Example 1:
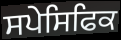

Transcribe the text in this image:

ਸਪੇਸਿਫਿਕ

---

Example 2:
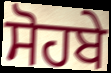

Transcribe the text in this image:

ਸੋਹਬੇ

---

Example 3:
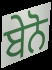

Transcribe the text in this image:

ਬੇਨੋ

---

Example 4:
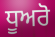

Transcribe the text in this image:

ਧੂਅਰੋ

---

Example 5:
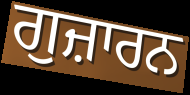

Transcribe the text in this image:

ਗੁਜ਼ਾਰਨ